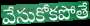
వేసుకోకపోతే